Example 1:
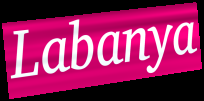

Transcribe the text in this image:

Labanya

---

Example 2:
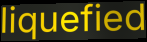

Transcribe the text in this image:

liquefied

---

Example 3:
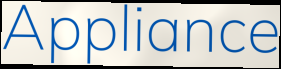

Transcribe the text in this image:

Appliance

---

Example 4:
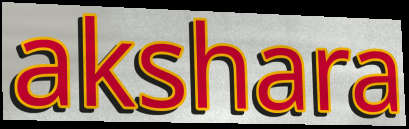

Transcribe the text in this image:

akshara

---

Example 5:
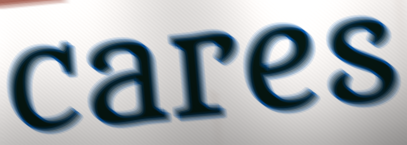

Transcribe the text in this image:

cares